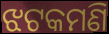
ଝଟକମଣି